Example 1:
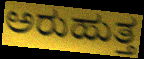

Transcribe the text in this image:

ಅರುಹುತ್ತ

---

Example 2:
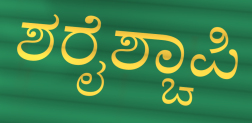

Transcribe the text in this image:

ಶರೈಶ್ಚಾಪಿ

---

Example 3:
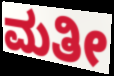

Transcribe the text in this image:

ಮತೀ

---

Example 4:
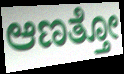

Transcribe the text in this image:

ಆಣತ್ತೋ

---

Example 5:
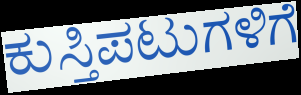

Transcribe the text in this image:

ಕುಸ್ತಿಪಟುಗಳಿಗೆ